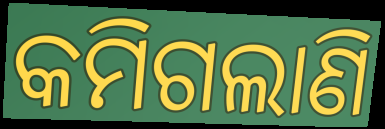
କମିଗଲାଣି